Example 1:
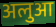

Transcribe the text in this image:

अलुआ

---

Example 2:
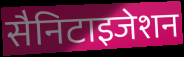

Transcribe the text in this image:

सैनिटाइजेशन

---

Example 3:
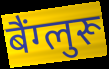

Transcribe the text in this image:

बैंग्लुरू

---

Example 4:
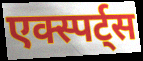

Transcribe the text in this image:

एक्स्पर्ट्स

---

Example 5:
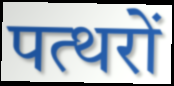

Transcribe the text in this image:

पत्‍थरों